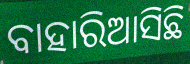
ବାହାରିଆସିଛି